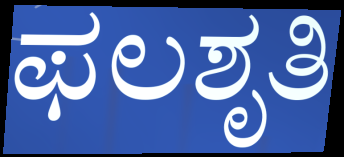
ಫಲಶೃತಿ